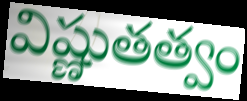
విష్ణుతత్వం